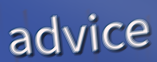
advice